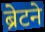
ब्रेटने